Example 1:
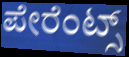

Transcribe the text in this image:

ಪೇರೆಂಟ್ಸ್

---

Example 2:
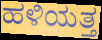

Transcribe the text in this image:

ಹಳಿಯತ್ತ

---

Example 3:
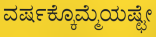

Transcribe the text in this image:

ವರ್ಷಕ್ಕೊಮ್ಮೆಯಷ್ಟೇ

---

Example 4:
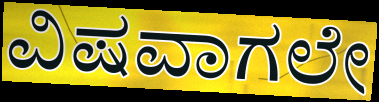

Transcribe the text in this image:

ವಿಷವಾಗಲೇ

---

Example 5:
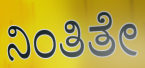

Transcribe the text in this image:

ನಿಂತಿತೇ